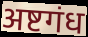
अष्टगंध